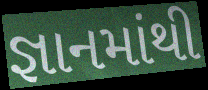
જ્ઞાનમાંથી